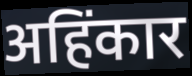
अहिंकार